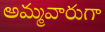
అమ్మవారుగా